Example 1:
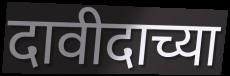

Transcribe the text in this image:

दावीदाच्या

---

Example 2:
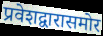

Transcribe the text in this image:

प्रवेशद्वारासमोर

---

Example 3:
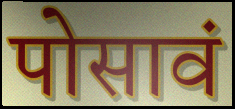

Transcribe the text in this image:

पोसावं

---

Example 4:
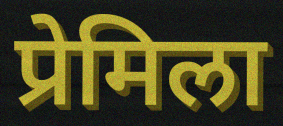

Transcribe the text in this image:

प्रेमिला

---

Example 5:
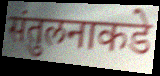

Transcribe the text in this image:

संतुलनाकडे